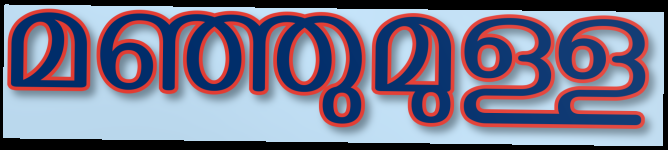
മഞ്ഞുമുള്ള